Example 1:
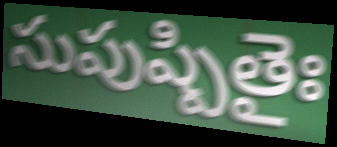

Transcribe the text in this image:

సుపుష్పితైః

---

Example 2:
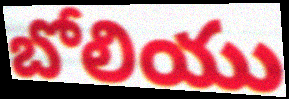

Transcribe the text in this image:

బోలియు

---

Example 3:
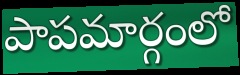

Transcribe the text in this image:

పాపమార్గంలో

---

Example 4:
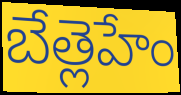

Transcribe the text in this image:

బేత్లెహేం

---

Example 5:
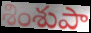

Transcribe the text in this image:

శింశుపా